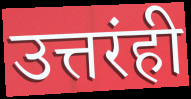
उत्तरंही